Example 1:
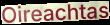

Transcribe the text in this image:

Oireachtas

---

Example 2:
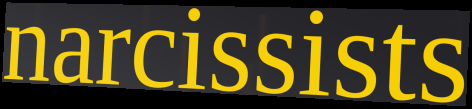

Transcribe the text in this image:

narcissists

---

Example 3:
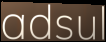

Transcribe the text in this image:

adsul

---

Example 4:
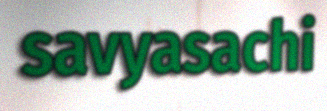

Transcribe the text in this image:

savyasachi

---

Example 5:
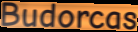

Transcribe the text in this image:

Budorcas